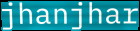
jhanjhar